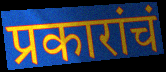
प्रकारांचं